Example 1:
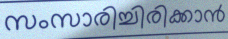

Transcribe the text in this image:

സംസാരിച്ചിരിക്കാൻ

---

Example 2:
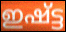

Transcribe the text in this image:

ഇഷ്ട്ട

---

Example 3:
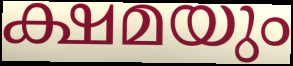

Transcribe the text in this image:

ക്ഷമയും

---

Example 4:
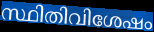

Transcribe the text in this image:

സ്ഥിതിവിശേഷം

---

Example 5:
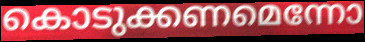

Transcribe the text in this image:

കൊടുക്കണമെന്നോ